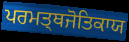
ਪਰਮਤ੍ਥਜੋਤਿਕਾਯ